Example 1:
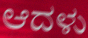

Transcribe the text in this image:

ಆದಳು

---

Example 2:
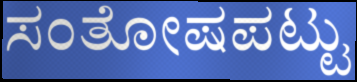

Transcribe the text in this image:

ಸಂತೋಷಪಟ್ಟು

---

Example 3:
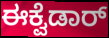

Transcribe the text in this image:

ಈಕ್ವೆಡಾರ್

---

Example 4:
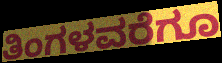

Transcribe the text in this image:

ತಿಂಗಳವರೆಗೂ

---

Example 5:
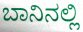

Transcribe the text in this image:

ಬಾನಿನಲ್ಲಿ